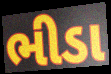
ભીડા